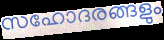
സഹോദരങ്ങളും